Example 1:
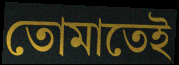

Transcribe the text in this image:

তোমাতেই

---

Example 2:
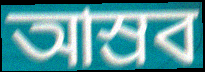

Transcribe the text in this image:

আস্রব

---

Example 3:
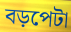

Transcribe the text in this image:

বড়পেটা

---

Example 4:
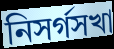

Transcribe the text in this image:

নিসর্গসখা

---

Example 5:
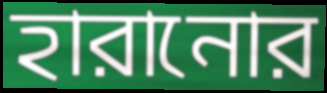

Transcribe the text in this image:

হারানোর